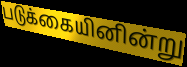
படுக்கையினின்று